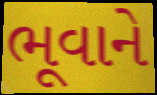
ભૂવાને